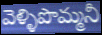
వెళ్ళిపొమ్మనీ